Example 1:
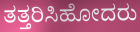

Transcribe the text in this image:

ತತ್ತರಿಸಿಹೋದರು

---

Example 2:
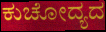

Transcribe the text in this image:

ಕುಚೋದ್ಯದ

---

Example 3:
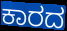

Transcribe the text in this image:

ಕಾರದ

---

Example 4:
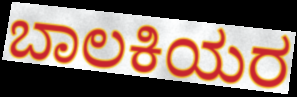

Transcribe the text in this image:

ಬಾಲಕಿಯರ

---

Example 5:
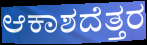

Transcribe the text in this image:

ಆಕಾಶದೆತ್ತರ